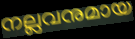
നല്ലവനുമായ